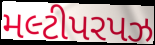
મલ્ટીપરપઝ